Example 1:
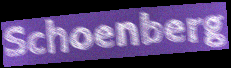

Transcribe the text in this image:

Schoenberg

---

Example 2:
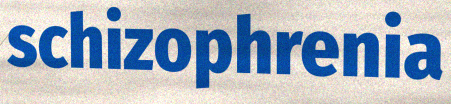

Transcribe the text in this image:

schizophrenia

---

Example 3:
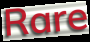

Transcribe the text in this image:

Rare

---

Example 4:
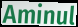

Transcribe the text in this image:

Aminul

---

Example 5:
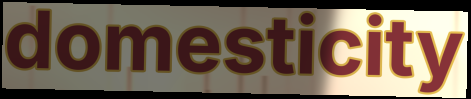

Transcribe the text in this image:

domesticity